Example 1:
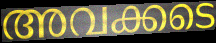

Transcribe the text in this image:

അവക്കടെ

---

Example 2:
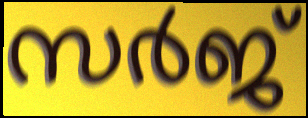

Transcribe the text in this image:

സർജ്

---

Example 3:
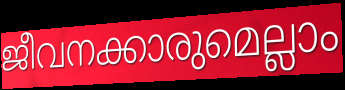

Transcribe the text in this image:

ജീവനക്കാരുമെല്ലാം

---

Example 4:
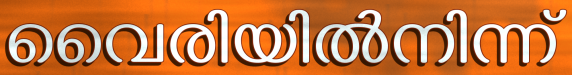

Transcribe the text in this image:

വൈരിയിൽനിന്ന്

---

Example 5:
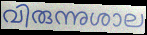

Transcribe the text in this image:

വിരുന്നുശാല